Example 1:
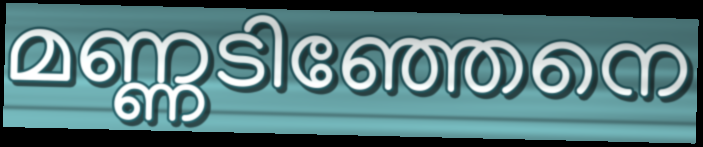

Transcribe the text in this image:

മണ്ണടിഞ്ഞേനെ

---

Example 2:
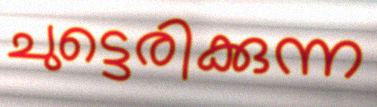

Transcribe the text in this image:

ചുട്ടെരിക്കുന്ന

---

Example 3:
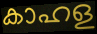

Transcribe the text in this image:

കാഹള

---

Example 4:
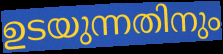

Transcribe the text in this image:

ഉടയുന്നതിനും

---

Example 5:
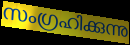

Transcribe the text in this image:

സംഗ്രഹിക്കുന്നു